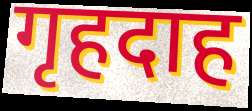
गृहदाह